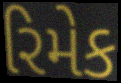
રિમેક